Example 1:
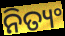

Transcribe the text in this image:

ନିତ୍ୟଂ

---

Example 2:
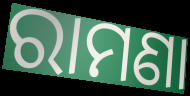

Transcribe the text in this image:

ରାମଣା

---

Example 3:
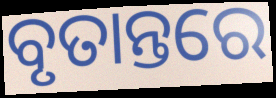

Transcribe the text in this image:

ବୃତାନ୍ତରେ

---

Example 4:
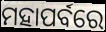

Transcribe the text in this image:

ମହାପର୍ବରେ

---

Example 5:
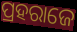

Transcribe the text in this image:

ପ୍ରହରାଜେ